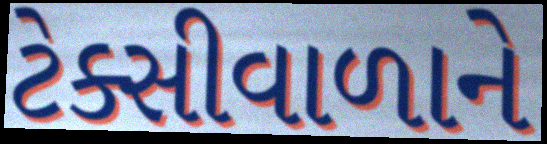
ટેક્સીવાળાને